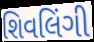
શિવલિંગી